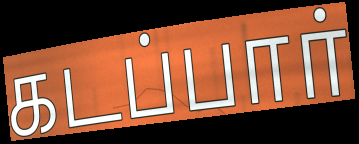
கடப்பார்